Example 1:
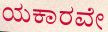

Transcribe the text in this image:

ಯಕಾರವೇ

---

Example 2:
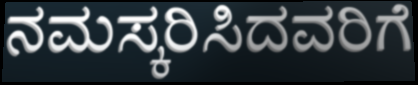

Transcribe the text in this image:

ನಮಸ್ಕರಿಸಿದವರಿಗೆ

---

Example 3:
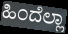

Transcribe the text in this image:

ಹಿಂದೆಲ್ಲಾ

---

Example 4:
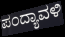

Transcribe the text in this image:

ಪಂದ್ಯಾವಳಿ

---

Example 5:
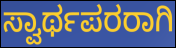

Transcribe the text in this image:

ಸ್ವಾರ್ಥಪರರಾಗಿ